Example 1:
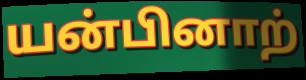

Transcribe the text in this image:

யன்பினாற்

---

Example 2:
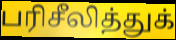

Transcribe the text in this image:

பரிசீலித்துக்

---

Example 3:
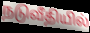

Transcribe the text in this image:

நடுவீதியில்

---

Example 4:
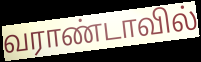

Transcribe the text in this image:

வராண்டாவில்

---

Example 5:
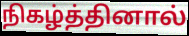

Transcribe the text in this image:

நிகழ்த்தினால்